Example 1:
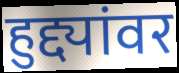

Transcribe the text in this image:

हुद्द्यांवर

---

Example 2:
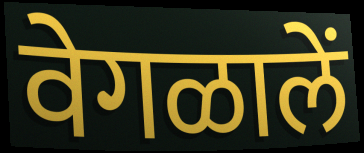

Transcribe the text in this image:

वेगळालें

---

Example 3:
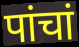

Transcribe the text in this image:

पांचां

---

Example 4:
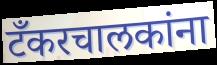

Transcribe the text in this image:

टँकरचालकांना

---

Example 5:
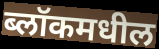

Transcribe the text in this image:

ब्लॉकमधील